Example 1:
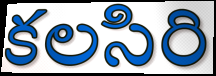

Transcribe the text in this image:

కలసిరి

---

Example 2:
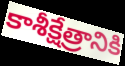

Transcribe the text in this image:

కాశీక్షేత్రానికి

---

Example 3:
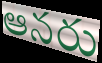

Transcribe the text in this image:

ఆనరు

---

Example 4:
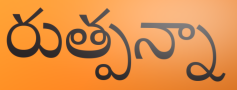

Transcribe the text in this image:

రుత్పన్నా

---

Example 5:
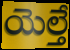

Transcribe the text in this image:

యెల్తే